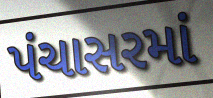
પંચાસરમાં